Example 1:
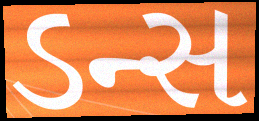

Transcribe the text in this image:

ડન્સ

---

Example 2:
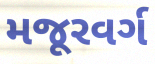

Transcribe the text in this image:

મજૂરવર્ગ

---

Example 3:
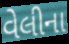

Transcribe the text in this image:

વેલીના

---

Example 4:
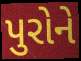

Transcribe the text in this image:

પુરોને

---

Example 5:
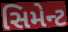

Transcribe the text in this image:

સિમેન્ટ